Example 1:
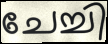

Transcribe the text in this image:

ചേച്ചി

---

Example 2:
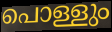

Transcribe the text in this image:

പൊള്ളും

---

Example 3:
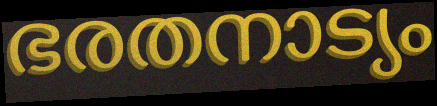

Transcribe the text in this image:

ഭരതനാട്യം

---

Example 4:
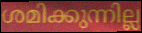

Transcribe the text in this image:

ശമിക്കുന്നില്ല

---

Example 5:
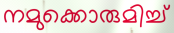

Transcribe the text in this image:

നമുക്കൊരുമിച്ച്